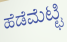
ಹೆಡೆಮೆಟ್ಟಿ